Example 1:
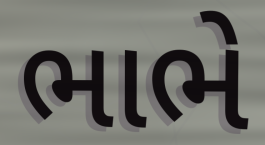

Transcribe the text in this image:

ભાભે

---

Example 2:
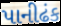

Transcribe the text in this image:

પાનીઢંક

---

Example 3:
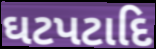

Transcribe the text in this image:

ઘટપટાદિ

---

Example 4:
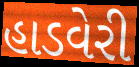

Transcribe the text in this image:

હાડવેરી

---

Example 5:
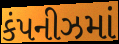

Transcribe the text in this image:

કંપનીઝમાં